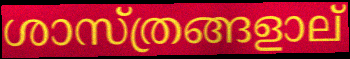
ശാസ്ത്രങ്ങളാല്